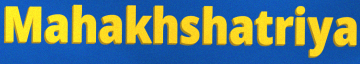
Mahakhshatriya